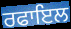
ਰਫਾਇਲ